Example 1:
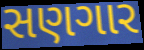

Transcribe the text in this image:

સણગાર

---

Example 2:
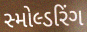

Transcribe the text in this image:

સ્મોલ્ડરિંગ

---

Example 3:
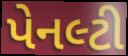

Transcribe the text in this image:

પેનલ્ટી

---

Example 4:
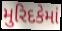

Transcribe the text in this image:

મુરિદકેમાં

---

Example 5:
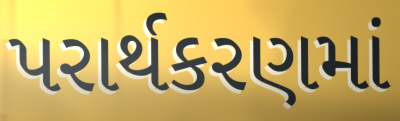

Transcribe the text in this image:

પરાર્થકરણમાં